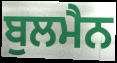
ਬੁਲਮੈਨ